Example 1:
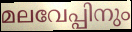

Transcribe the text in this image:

മലവേപ്പിനും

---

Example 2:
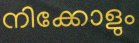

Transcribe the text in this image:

നിക്കോളും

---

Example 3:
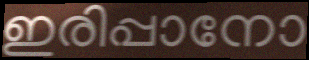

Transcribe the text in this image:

ഇരിപ്പാനോ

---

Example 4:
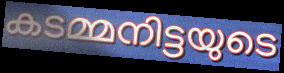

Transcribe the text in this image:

കടമ്മനിട്ടയുടെ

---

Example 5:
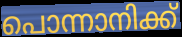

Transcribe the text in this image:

പൊന്നാനിക്ക്